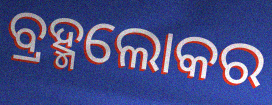
ବ୍ରହ୍ମଲୋକର